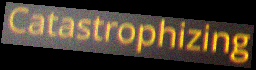
Catastrophizing